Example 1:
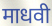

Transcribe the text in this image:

माधवी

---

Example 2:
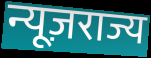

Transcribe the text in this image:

न्यूज़राज्य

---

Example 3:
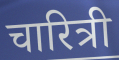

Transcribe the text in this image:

चारित्री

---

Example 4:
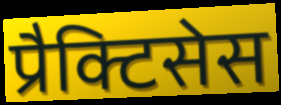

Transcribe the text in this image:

प्रैक्टिसेस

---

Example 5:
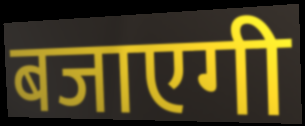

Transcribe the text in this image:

बजाएगी